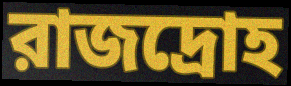
রাজদ্রোহ